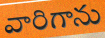
వారిగాను